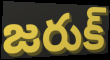
జరుక్